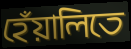
হেঁয়ালিতে